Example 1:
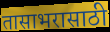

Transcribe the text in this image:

तासाभरासाठी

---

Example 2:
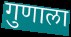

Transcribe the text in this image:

गुणाला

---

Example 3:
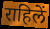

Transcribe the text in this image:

राहिलें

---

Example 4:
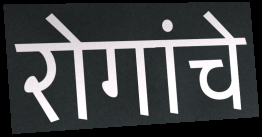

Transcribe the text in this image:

रोगांचे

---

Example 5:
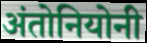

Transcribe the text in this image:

अंतोनियोनी